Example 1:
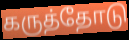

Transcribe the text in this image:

கருத்தோடு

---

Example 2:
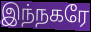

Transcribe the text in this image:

இந்நகரே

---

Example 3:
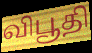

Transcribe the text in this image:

விபூதி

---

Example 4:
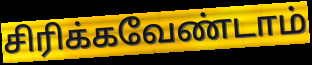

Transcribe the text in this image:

சிரிக்கவேண்டாம்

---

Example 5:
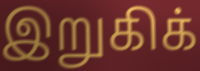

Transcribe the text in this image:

இறுகிக்